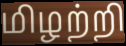
மிழற்றி